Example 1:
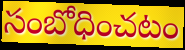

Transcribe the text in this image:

సంబోధించటం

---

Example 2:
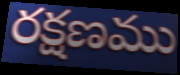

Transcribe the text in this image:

రక్షణము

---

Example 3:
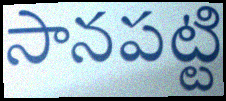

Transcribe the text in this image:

సానపట్టి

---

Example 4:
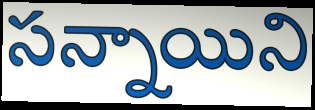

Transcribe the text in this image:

సన్నాయిని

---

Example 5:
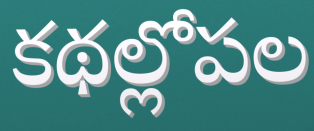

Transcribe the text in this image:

కథల్లోపల